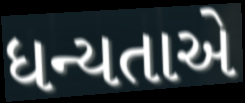
ધન્યતાએ